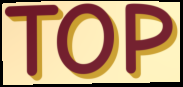
TOP